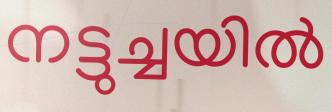
നട്ടുച്ചയിൽ